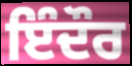
ਇੰਦੌਰ